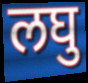
लघु